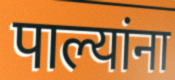
पाल्यांना